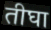
तीघा